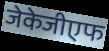
जेकेजीएफ